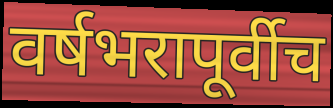
वर्षभरापूर्वीच